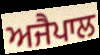
ਅਜੈਪਾਲ